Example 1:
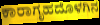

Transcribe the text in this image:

ಕಾರಾಗೃಹದೊಳಗಿನ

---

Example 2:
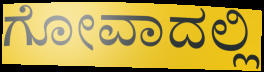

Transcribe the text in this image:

ಗೋವಾದಲ್ಲಿ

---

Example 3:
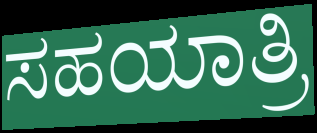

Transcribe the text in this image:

ಸಹಯಾತ್ರಿ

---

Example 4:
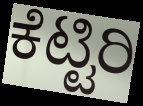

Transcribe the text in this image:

ಕೆಟ್ಟಿರಿ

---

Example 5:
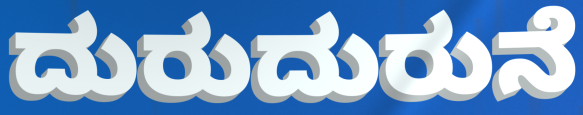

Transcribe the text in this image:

ದುರುದುರುನೆ